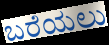
ಬರೆಯಲು